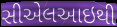
સીએલઆઇથી